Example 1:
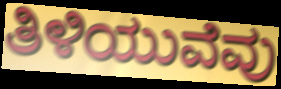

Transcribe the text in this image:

ತಿಳಿಯುವೆವು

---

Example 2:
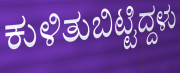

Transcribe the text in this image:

ಕುಳಿತುಬಿಟ್ಟಿದ್ದಳು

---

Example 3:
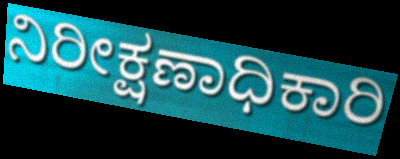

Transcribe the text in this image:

ನಿರೀಕ್ಷಣಾಧಿಕಾರಿ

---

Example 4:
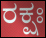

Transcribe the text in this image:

ರಕ್ಷಃ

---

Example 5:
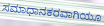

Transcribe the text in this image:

ಸಮಾಧಾನಕರವಾಗಿಯೂ